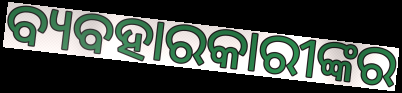
ବ୍ୟବହାରକାରୀଙ୍କର